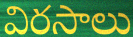
విరసాలు